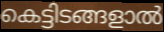
കെട്ടിടങ്ങളാൽ